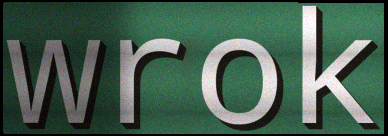
wrok